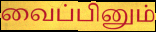
வைப்பினும்